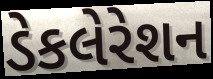
ડેકલેરેશન